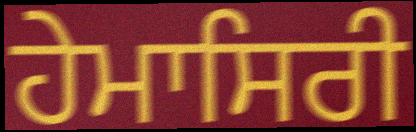
ਹੇਮਾਸਿਰੀ